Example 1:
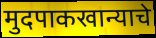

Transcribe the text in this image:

मुदपाकखान्याचे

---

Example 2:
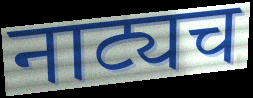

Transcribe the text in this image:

नाट्यच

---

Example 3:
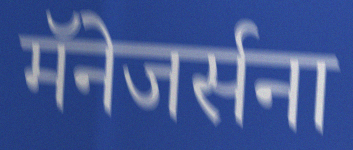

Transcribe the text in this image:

मॅनेजर्सना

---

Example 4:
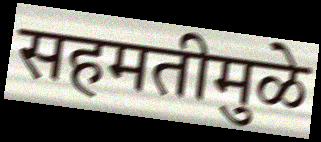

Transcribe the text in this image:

सहमतीमुळे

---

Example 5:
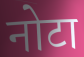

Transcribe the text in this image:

नोटा